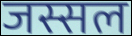
जस्सल